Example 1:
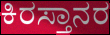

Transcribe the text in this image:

ಕಿರಸ್ತಾನರ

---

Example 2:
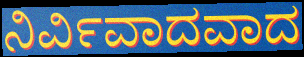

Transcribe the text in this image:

ನಿರ್ವಿವಾದವಾದ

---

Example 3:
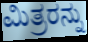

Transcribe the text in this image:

ಮಿತ್ರರನ್ನು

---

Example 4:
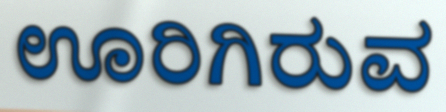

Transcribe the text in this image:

ಊರಿಗಿರುವ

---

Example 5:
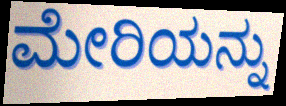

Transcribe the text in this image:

ಮೇರಿಯನ್ನು